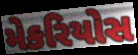
મેકરિયોસ